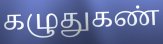
கழுதுகண்